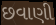
છવાણી